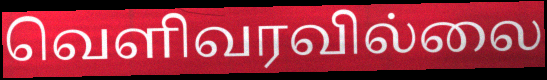
வெளிவரவில்லை